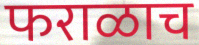
फराळाच